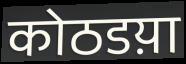
कोठडय़ा